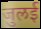
जुलई